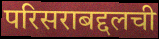
परिसराबद्दलची